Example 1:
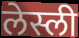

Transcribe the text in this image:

लेस्ली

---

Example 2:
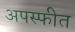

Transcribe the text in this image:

अपस्फीत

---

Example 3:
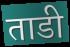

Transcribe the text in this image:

ताडी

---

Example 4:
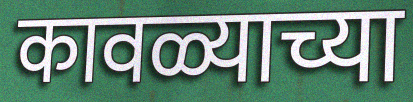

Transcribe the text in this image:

कावळ्याच्या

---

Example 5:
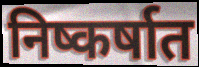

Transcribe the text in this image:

निष्कर्षात